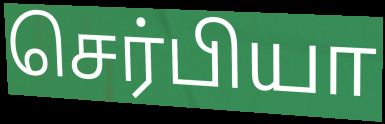
செர்பியா